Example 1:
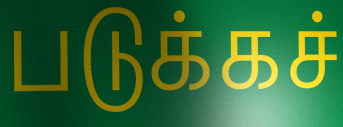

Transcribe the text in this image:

படுக்கச்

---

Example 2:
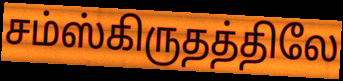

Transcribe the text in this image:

சம்ஸ்கிருதத்திலே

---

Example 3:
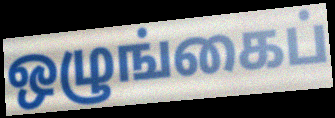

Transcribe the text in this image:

ஒழுங்கைப்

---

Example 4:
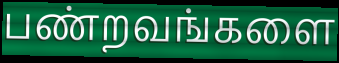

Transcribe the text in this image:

பண்றவங்களை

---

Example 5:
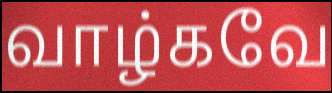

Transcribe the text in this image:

வாழ்கவே